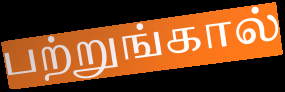
பற்றுங்கால்